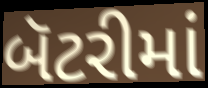
બૅટરીમાં